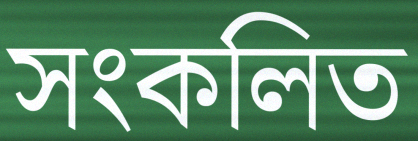
সংকলিত